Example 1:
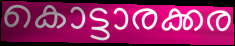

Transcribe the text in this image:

കൊട്ടാരക്കര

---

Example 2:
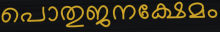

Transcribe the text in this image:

പൊതുജനക്ഷേമം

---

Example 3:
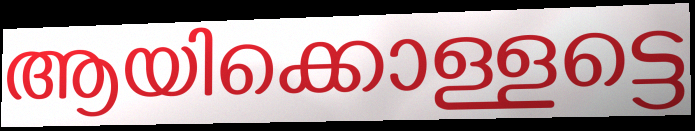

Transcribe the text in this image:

ആയിക്കൊള്ളട്ടെ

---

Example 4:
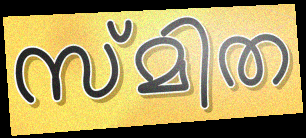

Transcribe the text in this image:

സ്മിത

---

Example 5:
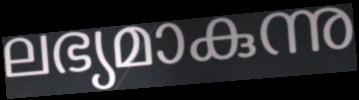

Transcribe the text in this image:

ലഭ്യമാകുന്നു